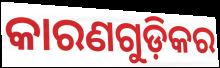
କାରଣଗୁଡ଼ିକର